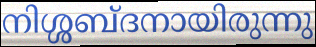
നിശ്ശബ്ദനായിരുന്നു